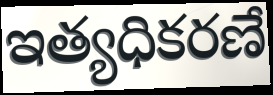
ఇత్యధికరణే